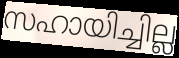
സഹായിച്ചില്ല